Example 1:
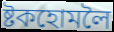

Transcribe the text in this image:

ষ্টকহোমলৈ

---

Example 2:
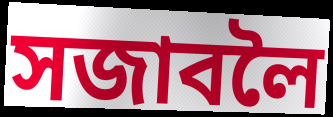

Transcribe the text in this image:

সজাবলৈ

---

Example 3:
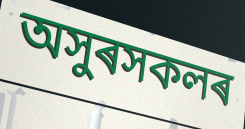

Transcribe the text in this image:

অসুৰসকলৰ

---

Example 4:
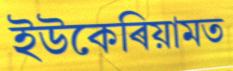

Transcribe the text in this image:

ইউকেৰিয়ামত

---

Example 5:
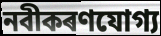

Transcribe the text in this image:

নবীকৰণযোগ্য